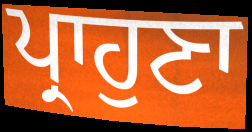
ਪ੍ਰਾਹੁਣਾ